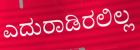
ಎದುರಾಡಿರಲಿಲ್ಲ